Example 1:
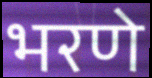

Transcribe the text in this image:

भरणे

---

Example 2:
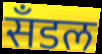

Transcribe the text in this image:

सँडल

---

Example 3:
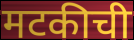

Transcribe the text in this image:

मटकीची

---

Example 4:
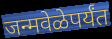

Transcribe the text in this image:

जन्मवेळेपर्यंत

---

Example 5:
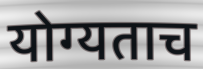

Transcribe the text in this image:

योग्यताच